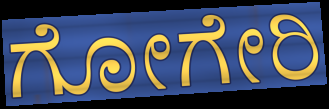
ಗೋಗೇರಿ